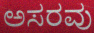
ಅಸರವು